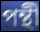
পন্থী